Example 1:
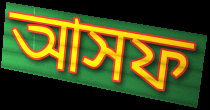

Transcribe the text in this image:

আসফ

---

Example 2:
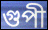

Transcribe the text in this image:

গুপী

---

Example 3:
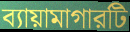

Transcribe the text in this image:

ব্যায়ামাগারটি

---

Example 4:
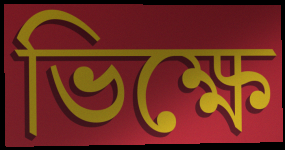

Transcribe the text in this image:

ভিক্ষে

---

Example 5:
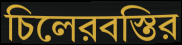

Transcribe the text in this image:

চিলেরবস্তির